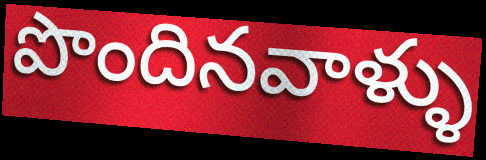
పొందినవాళ్ళు